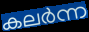
കലർന്ന